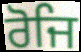
ਰੋਜਿ